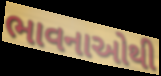
ભાવનાઓથી